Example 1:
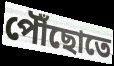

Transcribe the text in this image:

পৌঁছোতে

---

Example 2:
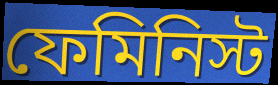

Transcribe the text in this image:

ফেমিনিস্ট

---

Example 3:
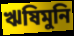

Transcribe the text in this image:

ঋষিমুনি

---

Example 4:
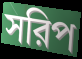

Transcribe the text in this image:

সরিপ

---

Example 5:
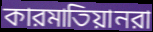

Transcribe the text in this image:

কারমাতিয়ানরা